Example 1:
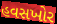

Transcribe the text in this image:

હવસખોર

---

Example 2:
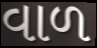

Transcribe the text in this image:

વાળ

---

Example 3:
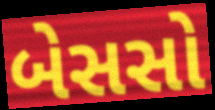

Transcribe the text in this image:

બેસસો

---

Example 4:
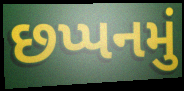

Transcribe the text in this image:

છપ્પનમું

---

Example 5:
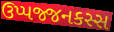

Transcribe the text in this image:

ઉપ્પજ્જનકસ્સ